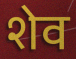
शेव